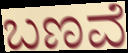
ಬಣವೆ